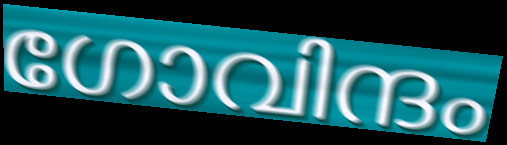
ഗോവിന്ദം